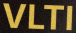
VLTI